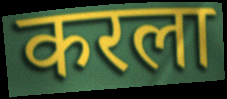
करला